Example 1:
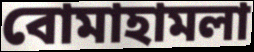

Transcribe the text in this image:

বোমাহামলা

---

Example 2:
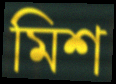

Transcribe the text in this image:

মিশ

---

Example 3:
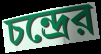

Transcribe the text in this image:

চন্দ্রের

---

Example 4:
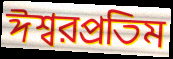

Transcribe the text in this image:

ঈশ্বরপ্রতিম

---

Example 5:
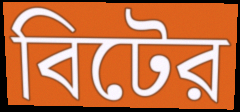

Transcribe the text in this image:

বিটের